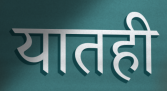
यातही